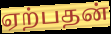
ஏற்பதன்